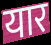
यार